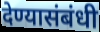
देण्यासंबंधी